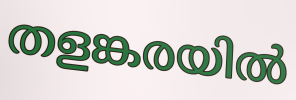
തളങ്കരയിൽ